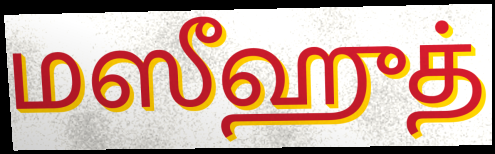
மஸீஹுத்